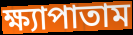
ক্ষ্যাপাতাম